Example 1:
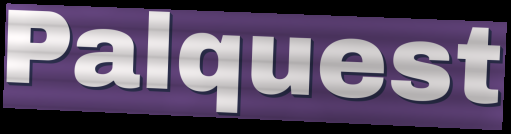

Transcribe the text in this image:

Palquest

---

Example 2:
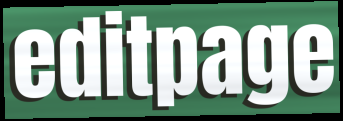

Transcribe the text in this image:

editpage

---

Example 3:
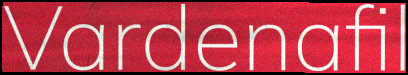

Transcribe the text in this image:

Vardenafil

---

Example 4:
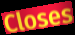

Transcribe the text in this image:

Closes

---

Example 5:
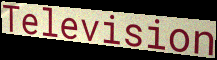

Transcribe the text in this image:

Television